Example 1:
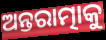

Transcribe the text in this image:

ଅନ୍ତରାତ୍ମାକୁ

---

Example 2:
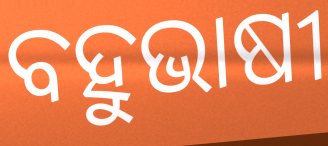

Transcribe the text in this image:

ବହୁଭାଷୀ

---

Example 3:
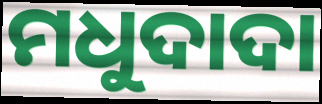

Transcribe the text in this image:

ମଧୁଦାଦା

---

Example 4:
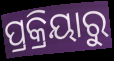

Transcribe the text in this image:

ପ୍ରକ୍ରିୟାରୁ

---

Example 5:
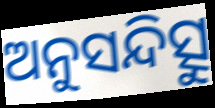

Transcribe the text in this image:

ଅନୁସନ୍ଦିତ୍ସୁ